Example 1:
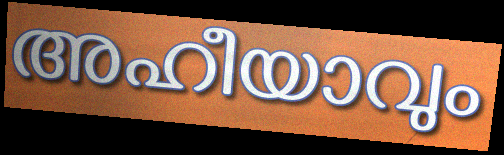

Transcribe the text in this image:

അഹീയാവും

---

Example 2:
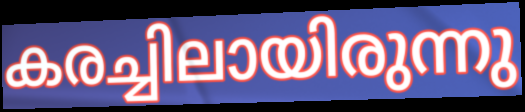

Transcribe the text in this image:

കരച്ചിലായിരുന്നു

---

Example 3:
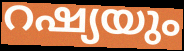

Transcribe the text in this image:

റഷ്യയും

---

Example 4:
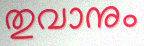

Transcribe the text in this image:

തുവാനും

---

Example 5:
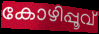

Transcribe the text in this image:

കോഴിപ്പൂവ്